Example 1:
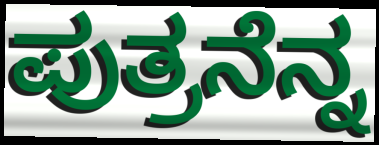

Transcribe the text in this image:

ಪುತ್ರನೆನ್ನ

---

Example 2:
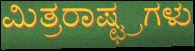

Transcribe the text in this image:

ಮಿತ್ರರಾಷ್ಟ್ರಗಳು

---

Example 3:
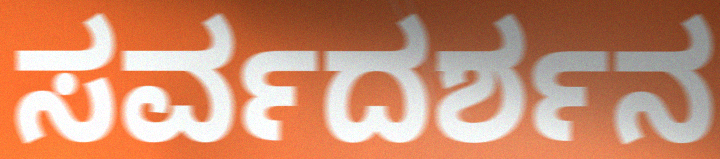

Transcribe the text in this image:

ಸರ್ವದರ್ಶನ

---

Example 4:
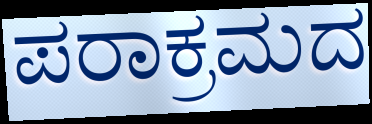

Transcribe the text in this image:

ಪರಾಕ್ರಮದ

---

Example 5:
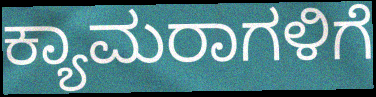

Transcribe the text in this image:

ಕ್ಯಾಮರಾಗಳಿಗೆ